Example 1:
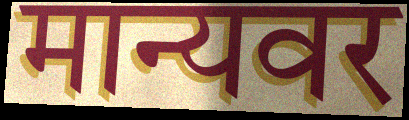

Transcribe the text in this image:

मान्‍यवर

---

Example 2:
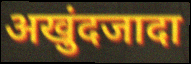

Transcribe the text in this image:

अखुंदजादा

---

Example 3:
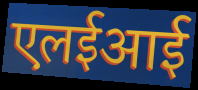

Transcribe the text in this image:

एलईआई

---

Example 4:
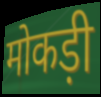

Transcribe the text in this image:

मोकड़ी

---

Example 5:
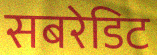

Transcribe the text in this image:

सबरेडिट